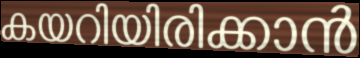
കയറിയിരിക്കാൻ